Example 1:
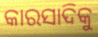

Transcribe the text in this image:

କାରସାଦିକୁ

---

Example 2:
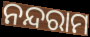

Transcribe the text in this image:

ନନ୍ଦରାମ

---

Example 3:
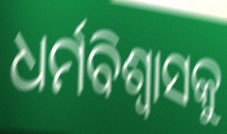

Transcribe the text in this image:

ଧର୍ମବିଶ୍ଵାସକୁ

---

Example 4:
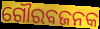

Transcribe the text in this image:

ଗୌରବଜନକ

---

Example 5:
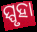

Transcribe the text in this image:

ସ୍ପୃହା